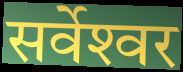
सर्वेश्‍वर